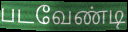
படவேண்டி